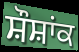
ਸ਼ੌਸ਼ਾਂਕ